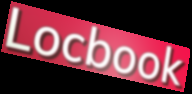
Locbook